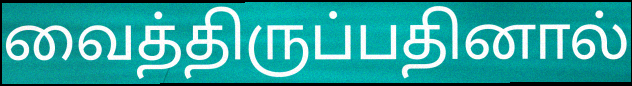
வைத்திருப்பதினால்